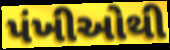
પંખીઓથી